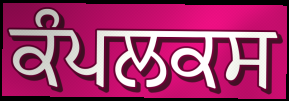
ਕੰਪਲਕਸ